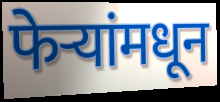
फेऱ्यांमधून